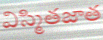
విస్మితజాత